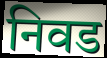
निवड